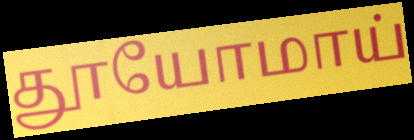
தூயோமாய்